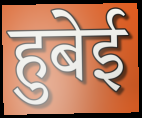
हुबेई